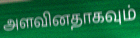
அளவினதாகவும்